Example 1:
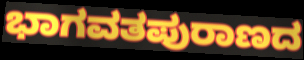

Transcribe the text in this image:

ಭಾಗವತಪುರಾಣದ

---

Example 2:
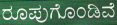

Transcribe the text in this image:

ರೂಪುಗೊಂಡಿವೆ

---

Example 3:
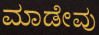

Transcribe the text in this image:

ಮಾಡೇವು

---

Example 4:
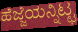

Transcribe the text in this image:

ಹೆಜ್ಜೆಯನ್ನಿಟ್ಟ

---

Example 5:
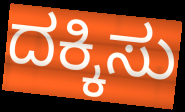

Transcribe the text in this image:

ದಕ್ಕಿಸು